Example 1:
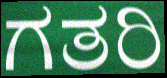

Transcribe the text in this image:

ಗತರಿ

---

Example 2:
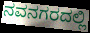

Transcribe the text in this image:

ನವನಗರದಲ್ಲಿ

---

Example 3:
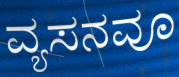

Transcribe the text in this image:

ವ್ಯಸನವೂ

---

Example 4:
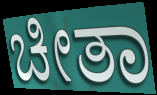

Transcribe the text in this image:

ಚೀತಾ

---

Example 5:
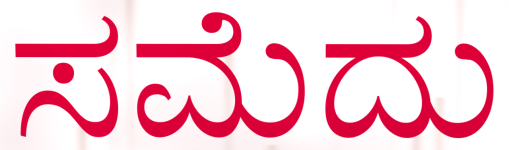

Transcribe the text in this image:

ಸಮೆದು